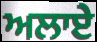
ਅਲਾਏ